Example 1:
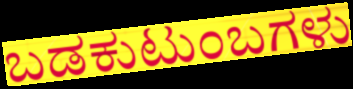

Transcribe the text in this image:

ಬಡಕುಟುಂಬಗಳು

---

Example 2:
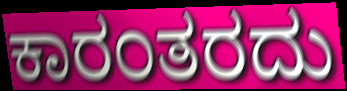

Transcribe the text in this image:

ಕಾರಂತರದು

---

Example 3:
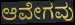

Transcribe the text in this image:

ಆವೇಗವು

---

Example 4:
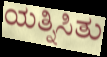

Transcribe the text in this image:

ಯತ್ನಿಸಿತು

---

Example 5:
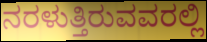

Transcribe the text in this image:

ನರಳುತ್ತಿರುವವರಲ್ಲಿ